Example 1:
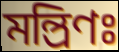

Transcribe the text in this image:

মন্ত্রিণঃ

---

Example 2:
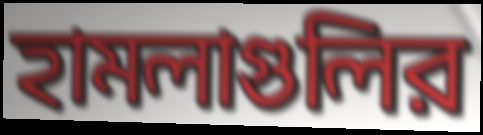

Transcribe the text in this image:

হামলাগুলির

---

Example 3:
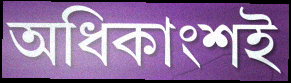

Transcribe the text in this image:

অধিকাংশই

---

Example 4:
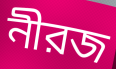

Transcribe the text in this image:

নীরজ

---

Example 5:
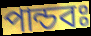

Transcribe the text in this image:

পান্ডবঃ